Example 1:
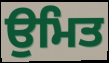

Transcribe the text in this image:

ਉਮਿਤ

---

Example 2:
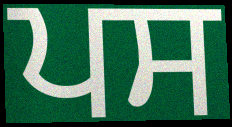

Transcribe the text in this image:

ਪਸ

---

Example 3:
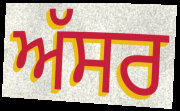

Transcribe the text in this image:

ਅੱਸਰ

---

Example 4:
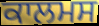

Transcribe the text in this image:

ਕਾਲਮਸ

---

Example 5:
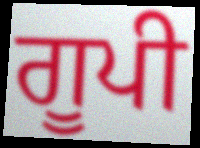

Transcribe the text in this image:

ਗੂਪੀ